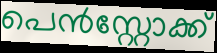
പെൻസ്റ്റോക്ക്